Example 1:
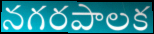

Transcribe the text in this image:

నగరపాలక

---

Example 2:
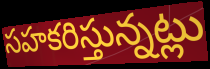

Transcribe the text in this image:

సహకరిస్తున్నట్లు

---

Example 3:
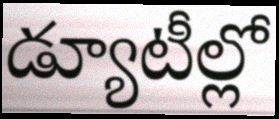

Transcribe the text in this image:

డ్యూటీల్లో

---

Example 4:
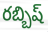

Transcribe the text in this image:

రబ్బిష్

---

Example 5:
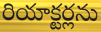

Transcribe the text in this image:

రియాక్టర్లను